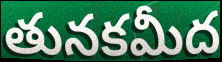
తునకమీద